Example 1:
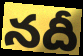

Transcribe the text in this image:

నదీ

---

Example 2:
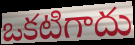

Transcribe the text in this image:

ఒకటిగాదు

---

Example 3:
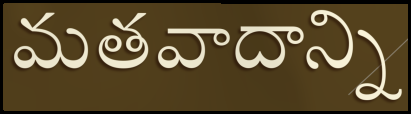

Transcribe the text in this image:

మతవాదాన్ని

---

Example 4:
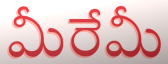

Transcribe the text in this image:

మీరేమీ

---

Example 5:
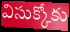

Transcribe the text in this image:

విసుక్కోకు